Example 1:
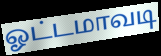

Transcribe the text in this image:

ஓட்டமாவடி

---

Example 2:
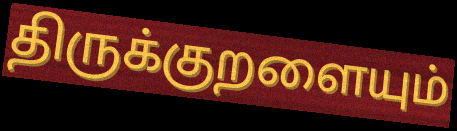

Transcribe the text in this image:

திருக்குறளையும்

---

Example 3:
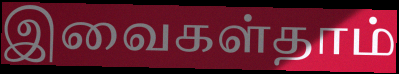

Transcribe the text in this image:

இவைகள்தாம்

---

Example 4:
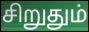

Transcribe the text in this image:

சிறுதும்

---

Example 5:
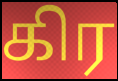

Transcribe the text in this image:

கிர